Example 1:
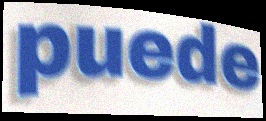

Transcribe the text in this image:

puede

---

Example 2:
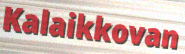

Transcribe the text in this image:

Kalaikkovan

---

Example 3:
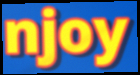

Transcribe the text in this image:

njoy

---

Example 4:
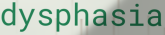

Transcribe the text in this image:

dysphasia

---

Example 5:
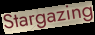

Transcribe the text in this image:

Stargazing